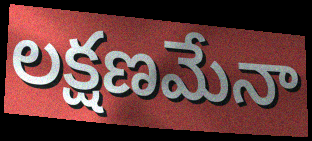
లక్షణమేనా